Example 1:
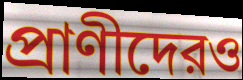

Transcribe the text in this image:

প্রাণীদেরও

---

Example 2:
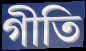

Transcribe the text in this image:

গীতি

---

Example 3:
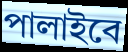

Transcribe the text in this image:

পালাইবে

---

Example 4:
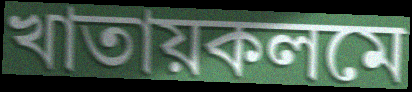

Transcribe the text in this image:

খাতায়কলমে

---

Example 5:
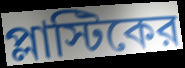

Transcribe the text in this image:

প্লাস্টিকের